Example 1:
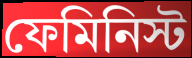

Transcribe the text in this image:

ফেমিনিস্ট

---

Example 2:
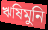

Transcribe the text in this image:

ঋষিমুনি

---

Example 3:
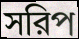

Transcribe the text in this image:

সরিপ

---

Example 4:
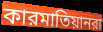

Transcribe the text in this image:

কারমাতিয়ানরা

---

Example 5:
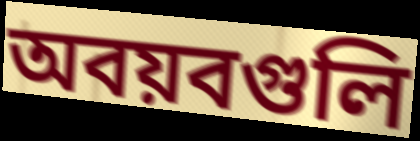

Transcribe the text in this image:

অবয়বগুলি